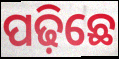
ପଢ଼ିଛେ